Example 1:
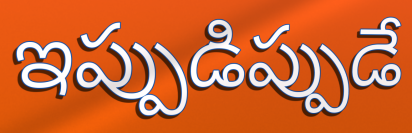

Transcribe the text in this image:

ఇప్పుడిప్పుడే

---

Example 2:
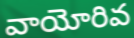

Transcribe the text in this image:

వాయోరివ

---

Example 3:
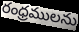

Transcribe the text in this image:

రంధ్రములను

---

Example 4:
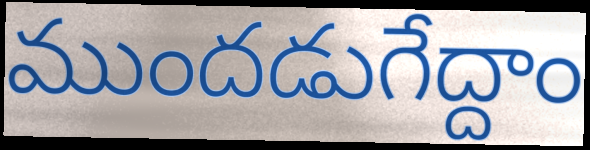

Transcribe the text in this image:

ముందడుగేద్దాం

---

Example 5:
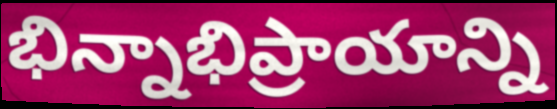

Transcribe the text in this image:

భిన్నాభిప్రాయాన్ని